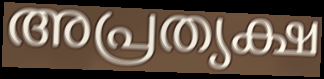
അപ്രത്യക്ഷ